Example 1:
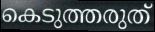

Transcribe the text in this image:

കെടുത്തരുത്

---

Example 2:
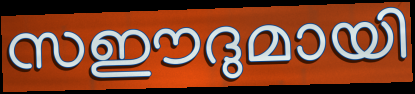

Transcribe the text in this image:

സഈദുമായി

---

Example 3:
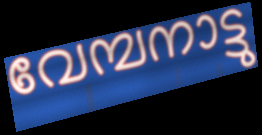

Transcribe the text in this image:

വേമ്പനാട്ടു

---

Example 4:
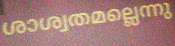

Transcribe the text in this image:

ശാശ്വതമല്ലെന്നു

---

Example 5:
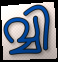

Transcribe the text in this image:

വ്വി